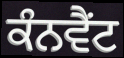
ਕੰਨਵੈਂਟ